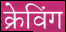
क्रेविंग